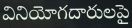
వినియోగదారులపై